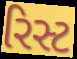
રિસ્ટ